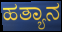
ಹತ್ಯಾನ